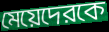
মেয়েদেরকে